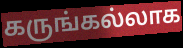
கருங்கல்லாக